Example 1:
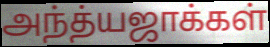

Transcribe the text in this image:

அந்த்யஜாக்கள்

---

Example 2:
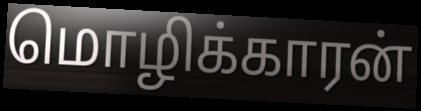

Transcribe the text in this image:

மொழிக்காரன்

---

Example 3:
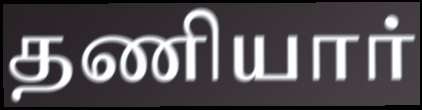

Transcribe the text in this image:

தணியார்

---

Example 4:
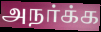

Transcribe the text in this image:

அநர்க்க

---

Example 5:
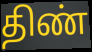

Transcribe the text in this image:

திண்